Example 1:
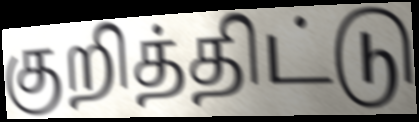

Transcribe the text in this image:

குறித்திட்டு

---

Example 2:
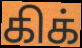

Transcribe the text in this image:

கிக்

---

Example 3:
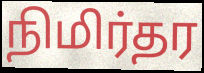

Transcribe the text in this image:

நிமிர்தர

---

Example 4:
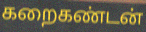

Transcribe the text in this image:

கறைகண்டன்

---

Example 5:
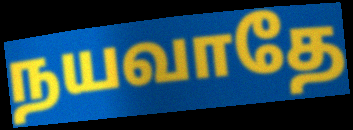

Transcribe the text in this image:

நயவாதே